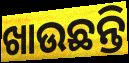
ଖାଉଛନ୍ତି